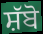
ਸ਼ੱਬੋ